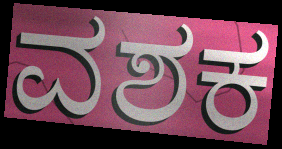
ವಶಕ